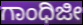
ಗಾಂಧಿಜೀ